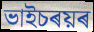
ভাইচৰয়ৰ